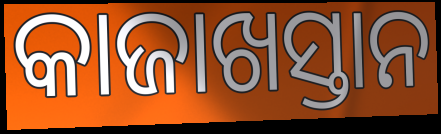
କାଜାଖସ୍ତାନ